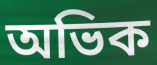
অভিক